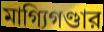
মাগ্যিগণ্ডার